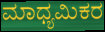
ಮಾಧ್ಯಮಿಕರ